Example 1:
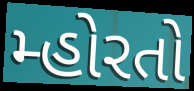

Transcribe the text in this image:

મ્હોરતો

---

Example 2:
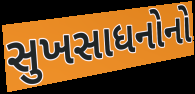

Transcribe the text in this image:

સુખસાધનોનો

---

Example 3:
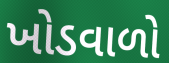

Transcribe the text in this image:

ખોડવાળો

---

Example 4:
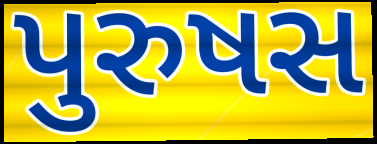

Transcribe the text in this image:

પુરુષસ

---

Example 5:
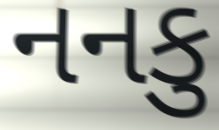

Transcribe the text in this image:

નનકુ